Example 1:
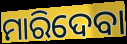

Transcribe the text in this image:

ମାରିଦେବା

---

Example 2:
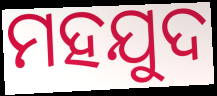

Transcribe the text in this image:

ମହଯୁଦ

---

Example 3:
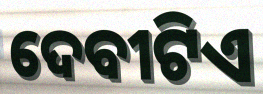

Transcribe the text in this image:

ଦେବୀଟିଏ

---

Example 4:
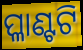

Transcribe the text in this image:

ପ୍ଳାଣ୍ଟଟି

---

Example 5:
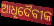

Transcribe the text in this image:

ଆଧିଦୈବୀକ